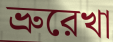
ভ্রুরেখা